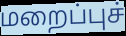
மறைப்புச்